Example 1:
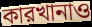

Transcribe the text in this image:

কারখানাও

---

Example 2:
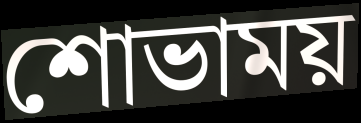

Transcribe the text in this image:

শোভাময়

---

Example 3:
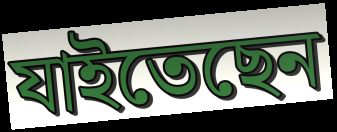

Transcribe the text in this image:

যাইতেছেন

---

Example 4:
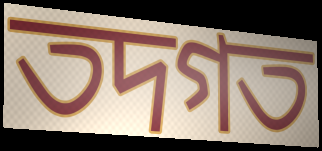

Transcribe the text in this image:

তদগত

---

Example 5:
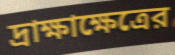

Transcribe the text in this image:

দ্রাক্ষাক্ষেত্রের